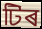
টিৰ